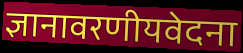
ज्ञानावरणीयवेदना